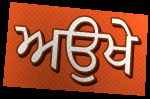
ਅਉਖੇ